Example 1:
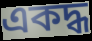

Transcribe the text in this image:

একদ্ধ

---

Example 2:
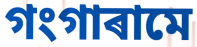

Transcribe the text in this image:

গংগাৰামে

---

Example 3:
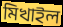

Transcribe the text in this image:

মিখাইল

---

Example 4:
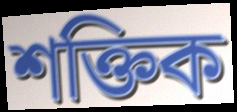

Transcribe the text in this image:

শক্তিক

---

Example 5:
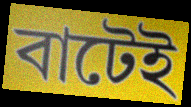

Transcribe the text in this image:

বাটেই